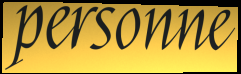
personne